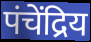
पंचेंद्रिय